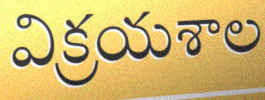
విక్రయశాల